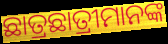
ଛାତ୍ରଛାତ୍ରୀମାନଙ୍କ